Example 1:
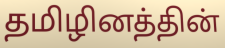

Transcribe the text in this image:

தமிழினத்தின்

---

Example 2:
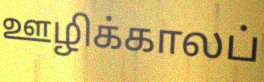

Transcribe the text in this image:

ஊழிக்காலப்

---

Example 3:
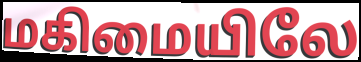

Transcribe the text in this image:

மகிமையிலே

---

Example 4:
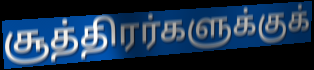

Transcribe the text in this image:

சூத்திரர்களுக்குக்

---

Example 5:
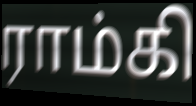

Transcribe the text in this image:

ராம்கி